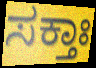
ಸಕ್ತಾಃ